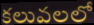
కలువలలో